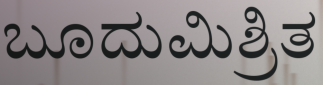
ಬೂದುಮಿಶ್ರಿತ